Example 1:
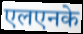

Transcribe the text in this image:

एलएनके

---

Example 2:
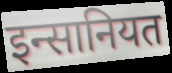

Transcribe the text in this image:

इन्सानियत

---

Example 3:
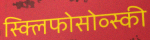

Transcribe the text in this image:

स्क्लिफोसोव्स्की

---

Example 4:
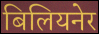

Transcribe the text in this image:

बिलियनेर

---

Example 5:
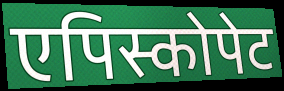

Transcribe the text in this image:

एपिस्कोपेट